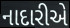
નાદારીએ